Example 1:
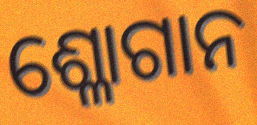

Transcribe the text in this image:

ଶ୍ଳୋଗାନ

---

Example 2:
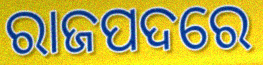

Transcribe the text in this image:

ରାଜପଦରେ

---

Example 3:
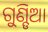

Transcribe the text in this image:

ଗୁଣ୍ଡିଆ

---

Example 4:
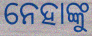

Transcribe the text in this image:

ନେହାଙ୍କୁ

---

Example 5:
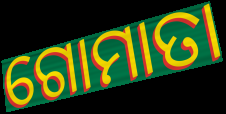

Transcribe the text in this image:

ଗୋମାତା